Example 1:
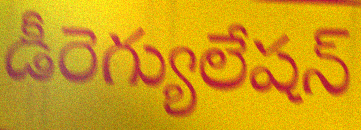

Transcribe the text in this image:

డీరెగ్యులేషన్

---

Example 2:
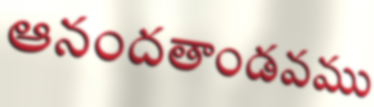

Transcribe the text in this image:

ఆనందతాండవము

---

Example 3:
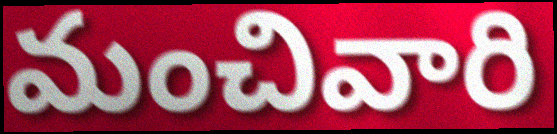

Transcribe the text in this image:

మంచివారి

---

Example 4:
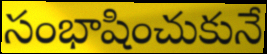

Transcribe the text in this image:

సంభాషించుకునే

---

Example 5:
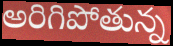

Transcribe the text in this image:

అరిగిపోతున్న